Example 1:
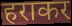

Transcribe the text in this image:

हराकर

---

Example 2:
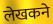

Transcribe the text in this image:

लेखकने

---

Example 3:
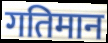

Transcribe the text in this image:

गतिमान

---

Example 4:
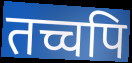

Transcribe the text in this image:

तच्चपि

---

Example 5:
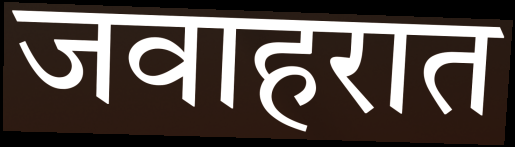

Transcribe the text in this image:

जवाहरात